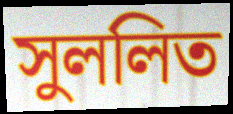
সুললিত